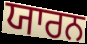
ਯਾਰਨ